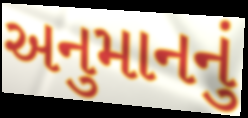
અનુમાનનું